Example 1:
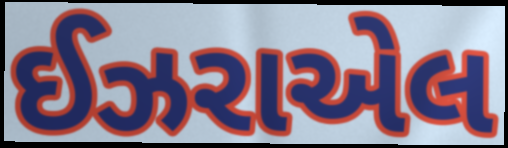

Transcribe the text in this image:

ઈઝરાએલ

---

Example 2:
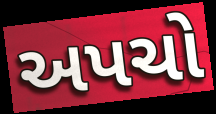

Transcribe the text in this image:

અપચો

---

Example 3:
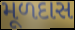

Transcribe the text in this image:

મૂળદાસ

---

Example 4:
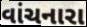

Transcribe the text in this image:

વાંચનારા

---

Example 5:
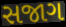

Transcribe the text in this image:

સજાગ